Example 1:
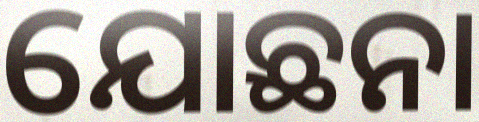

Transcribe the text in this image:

ଯୋଛନା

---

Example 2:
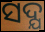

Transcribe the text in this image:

ସଦ୍ଯ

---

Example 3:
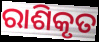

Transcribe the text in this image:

ରାଶିକୃତ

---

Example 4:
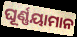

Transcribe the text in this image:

ଘୂର୍ଣ୍ଣୟାମାନ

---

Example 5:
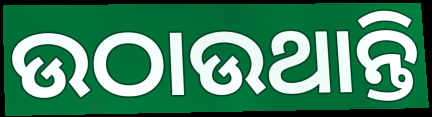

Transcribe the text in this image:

ଉଠାଉଥାନ୍ତି